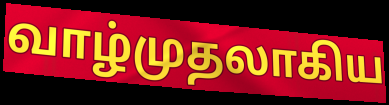
வாழ்முதலாகிய